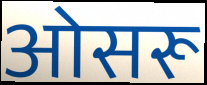
ओसरू